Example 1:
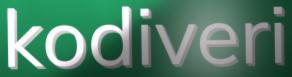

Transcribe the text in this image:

kodiveri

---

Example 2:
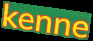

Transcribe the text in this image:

kenne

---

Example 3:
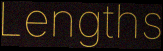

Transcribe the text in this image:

Lengths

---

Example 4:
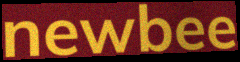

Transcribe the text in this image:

newbee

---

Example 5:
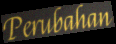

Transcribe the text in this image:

Perubahan